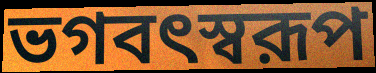
ভগবৎস্বরূপ